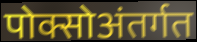
पोक्सोअंतर्गत